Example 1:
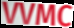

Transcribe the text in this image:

VVMC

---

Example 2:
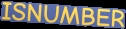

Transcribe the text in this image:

ISNUMBER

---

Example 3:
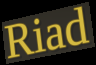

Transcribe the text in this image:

Riad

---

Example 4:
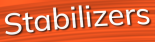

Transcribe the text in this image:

Stabilizers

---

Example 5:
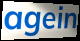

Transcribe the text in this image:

agein